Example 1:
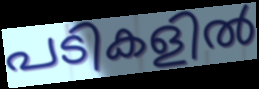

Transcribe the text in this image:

പടികളിൽ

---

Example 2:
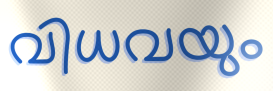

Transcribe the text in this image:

വിധവയും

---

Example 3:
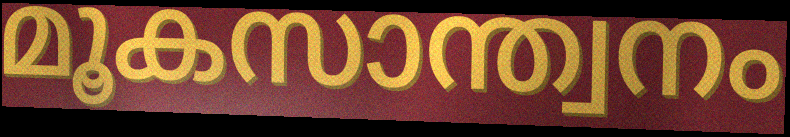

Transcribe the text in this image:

മൂകസാന്ത്വനം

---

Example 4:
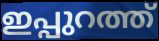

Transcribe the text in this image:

ഇപ്പുറത്ത്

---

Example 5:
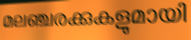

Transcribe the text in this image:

മലഞ്ചരക്കുകളുമായി